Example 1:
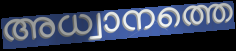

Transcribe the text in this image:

അധ്വാനത്തെ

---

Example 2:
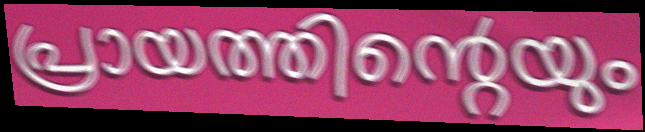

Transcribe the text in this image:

പ്രായത്തിന്റെയും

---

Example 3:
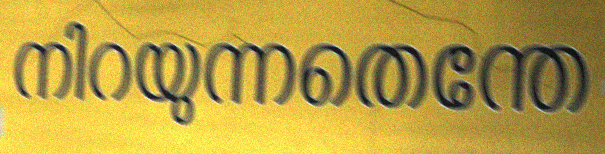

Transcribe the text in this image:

നിറയുന്നതെന്തേ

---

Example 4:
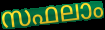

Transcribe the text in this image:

സഫലാം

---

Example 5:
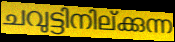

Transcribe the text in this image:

ചവുട്ടിനില്ക്കുന്ന